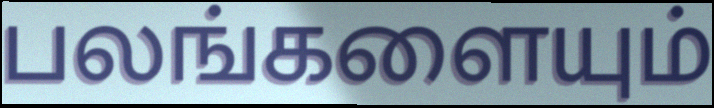
பலங்களையும்